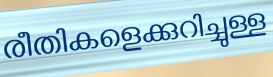
രീതികളെക്കുറിച്ചുള്ള